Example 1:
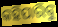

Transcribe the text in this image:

କହିପାରିବୁ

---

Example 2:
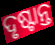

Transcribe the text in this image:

ଦୃଷ୍ଟାନ୍ତ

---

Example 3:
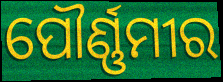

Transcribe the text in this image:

ପୌର୍ଣ୍ଣମୀର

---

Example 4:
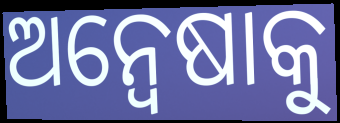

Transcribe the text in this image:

ଅନ୍ୱେଷାକୁ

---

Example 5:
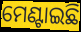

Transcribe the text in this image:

ମେଣ୍ଟାଇଛି